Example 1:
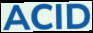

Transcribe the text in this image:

ACID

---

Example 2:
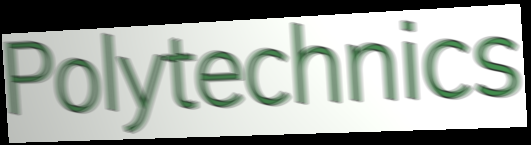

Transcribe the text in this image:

Polytechnics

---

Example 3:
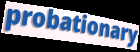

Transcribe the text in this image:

probationary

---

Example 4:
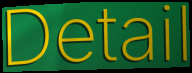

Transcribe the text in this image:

Detail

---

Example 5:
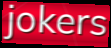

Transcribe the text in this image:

jokers